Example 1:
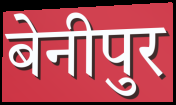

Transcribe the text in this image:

बेनीपुर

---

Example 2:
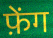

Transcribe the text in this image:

फ़ेंग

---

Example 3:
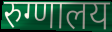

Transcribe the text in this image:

रुग्णालय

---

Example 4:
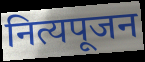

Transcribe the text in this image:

नित्यपूजन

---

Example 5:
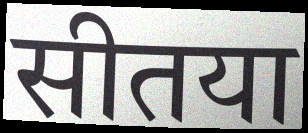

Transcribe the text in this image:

सीतया